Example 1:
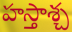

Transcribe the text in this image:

హస్తాశ్చ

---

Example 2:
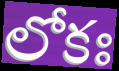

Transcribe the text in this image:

లోకః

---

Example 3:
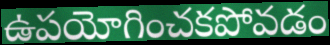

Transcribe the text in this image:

ఉపయోగించకపోవడం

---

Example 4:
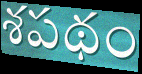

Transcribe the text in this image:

శపథం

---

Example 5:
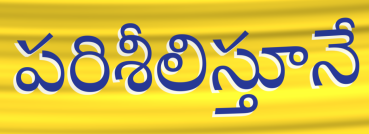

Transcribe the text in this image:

పరిశీలిస్తూనే